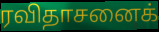
ரவிதாசனைக்